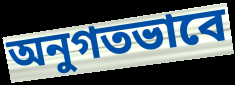
অনুগতভাবে